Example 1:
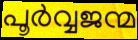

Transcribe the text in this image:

പൂർവ്വജന്മ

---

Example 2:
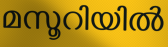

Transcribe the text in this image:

മസൂറിയിൽ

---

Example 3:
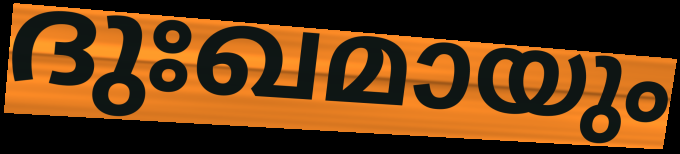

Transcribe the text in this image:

ദുഃഖമായും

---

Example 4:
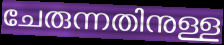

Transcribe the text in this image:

ചേരുന്നതിനുള്ള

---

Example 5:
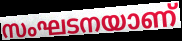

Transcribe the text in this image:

സംഘടനയാണ്